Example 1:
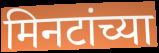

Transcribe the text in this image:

मिनटांच्या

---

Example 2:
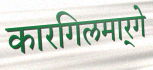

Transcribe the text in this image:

कारगिलमार्गे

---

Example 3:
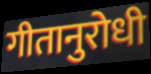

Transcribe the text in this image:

गीतानुरोधी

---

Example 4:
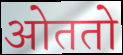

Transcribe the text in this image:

ओततो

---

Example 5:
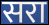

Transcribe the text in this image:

सरा